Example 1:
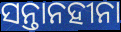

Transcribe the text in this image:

ସନ୍ତାନହୀନା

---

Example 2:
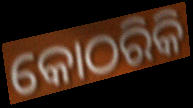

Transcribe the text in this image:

କୋଠରିକି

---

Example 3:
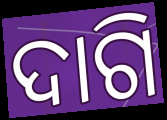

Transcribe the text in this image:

ଦାଗି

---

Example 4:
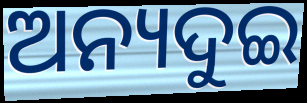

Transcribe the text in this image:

ଅନ୍ୟଦୁଇ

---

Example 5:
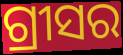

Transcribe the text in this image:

ଗ୍ରୀସର